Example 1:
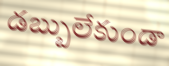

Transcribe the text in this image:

డబ్బులేకుండా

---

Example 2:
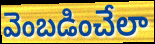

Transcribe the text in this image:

వెంబడించేలా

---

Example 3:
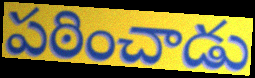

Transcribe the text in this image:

పఠించాడు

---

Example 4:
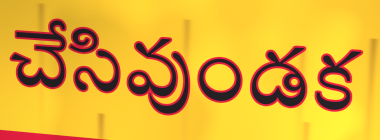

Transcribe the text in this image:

చేసివుండక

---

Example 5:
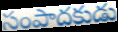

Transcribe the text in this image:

సంపాదకుడు